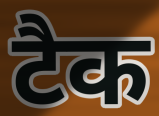
टैक